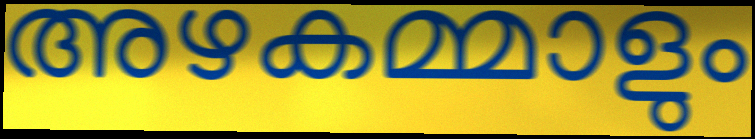
അഴകമ്മാളും